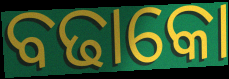
ବଢାକୋ